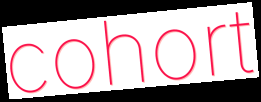
cohort